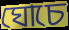
ঘোচে